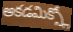
అకడమిక్స్లో